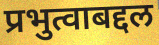
प्रभुत्वाबद्दल